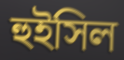
হুইসিল